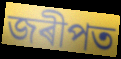
জৰীপত